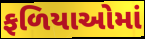
ફળિયાઓમાં